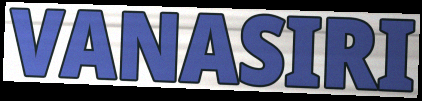
VANASIRI